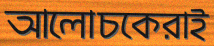
আলোচকেরাই